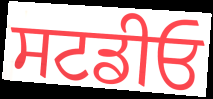
ਸਟਡੀਓ